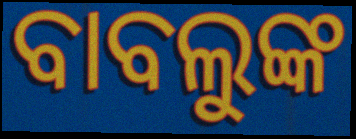
ବାବଲୁଙ୍କ